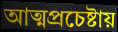
আত্মপ্রচেষ্টায়